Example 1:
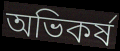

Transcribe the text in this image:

অভিকর্ষ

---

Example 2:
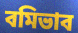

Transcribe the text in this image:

বমিভাব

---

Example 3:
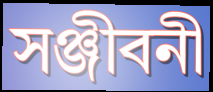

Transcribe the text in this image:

সঞ্জীবনী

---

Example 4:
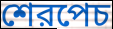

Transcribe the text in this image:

শেরপেচ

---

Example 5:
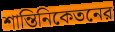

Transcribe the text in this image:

শান্তিনিকেতনের